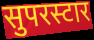
सुपरस्टार